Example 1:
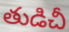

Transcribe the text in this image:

తుడిచీ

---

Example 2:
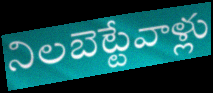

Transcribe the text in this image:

నిలబెట్టేవాళ్లు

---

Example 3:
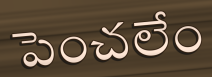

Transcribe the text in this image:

పెంచలేం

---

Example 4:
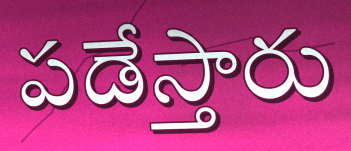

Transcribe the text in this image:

పడేస్తారు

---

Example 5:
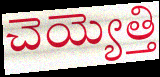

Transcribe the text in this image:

చెయ్యెత్తి